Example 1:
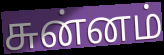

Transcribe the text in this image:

சுன்னம்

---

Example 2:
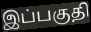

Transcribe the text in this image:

இப்பகுதி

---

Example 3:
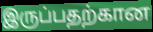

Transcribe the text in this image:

இருப்பதற்கான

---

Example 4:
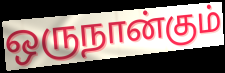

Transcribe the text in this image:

ஒருநான்கும்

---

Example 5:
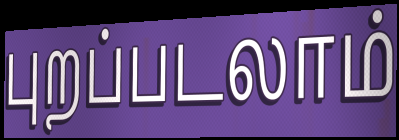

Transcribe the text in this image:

புறப்படலாம்